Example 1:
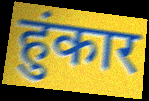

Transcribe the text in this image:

हुंकार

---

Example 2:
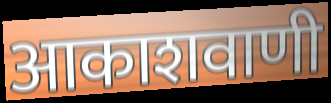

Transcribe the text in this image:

आकाशवाणी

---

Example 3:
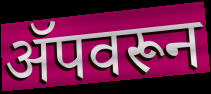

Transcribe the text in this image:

ॲपवरून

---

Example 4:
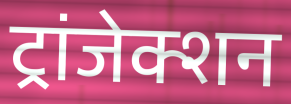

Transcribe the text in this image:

ट्रांजेक्शन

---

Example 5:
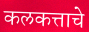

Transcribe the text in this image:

कलकत्ताचे